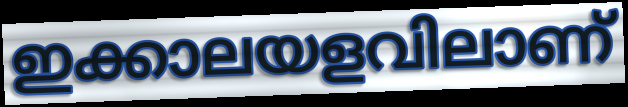
ഇക്കാലയളവിലാണ്